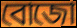
বোজো